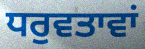
ਧਰੁਵਤਾਵਾਂ